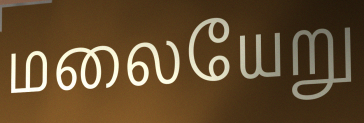
மலையேறு